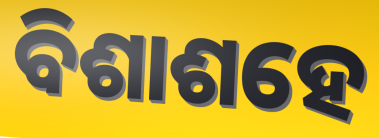
ବିଶାଶହେ